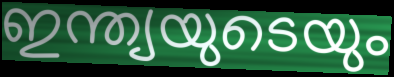
ഇന്ത്യയുടെയും